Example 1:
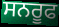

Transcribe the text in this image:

ਸਨਰੂਫ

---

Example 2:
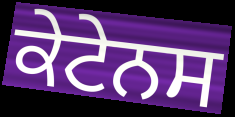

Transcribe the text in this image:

ਕੇਟੇਨਸ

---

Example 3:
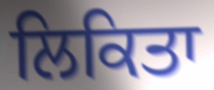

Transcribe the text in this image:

ਲਿਕਿਤਾ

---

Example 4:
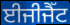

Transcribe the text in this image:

ਈਜੀਜੈੱਟ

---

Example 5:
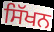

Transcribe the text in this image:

ਸਿੱਖਨ